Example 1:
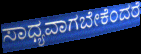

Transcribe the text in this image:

ಸಾಧ್ಯವಾಗಬೇಕೆಂದರೆ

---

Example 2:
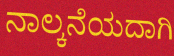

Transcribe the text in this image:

ನಾಲ್ಕನೆಯದಾಗಿ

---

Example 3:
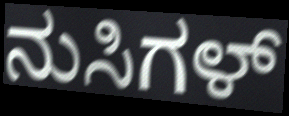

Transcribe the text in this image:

ನುಸಿಗಳ್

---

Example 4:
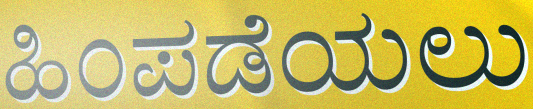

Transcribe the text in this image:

ಹಿಂಪಡೆಯಲು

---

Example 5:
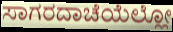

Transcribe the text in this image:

ಸಾಗರದಾಚೆಯೆಲ್ಲೋ